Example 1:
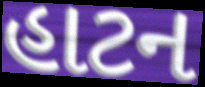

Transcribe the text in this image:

હાટન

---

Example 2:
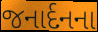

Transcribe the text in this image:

જનાર્દનના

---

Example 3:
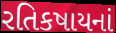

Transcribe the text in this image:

રતિકષાયનાં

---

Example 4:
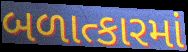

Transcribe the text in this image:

બળાત્કારમાં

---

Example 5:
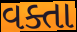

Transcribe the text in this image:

વક્તા